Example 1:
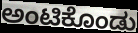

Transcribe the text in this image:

ಅಂಟಿಕೊಂಡು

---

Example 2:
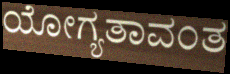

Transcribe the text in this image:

ಯೋಗ್ಯತಾವಂತ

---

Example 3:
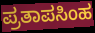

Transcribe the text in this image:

ಪ್ರತಾಪಸಿಂಹ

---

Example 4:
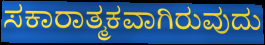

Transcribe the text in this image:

ಸಕಾರಾತ್ಮಕವಾಗಿರುವುದು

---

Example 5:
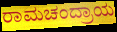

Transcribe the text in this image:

ರಾಮಚಂದ್ರಾಯ